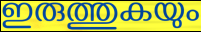
ഇരുത്തുകയും